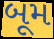
બૂમ